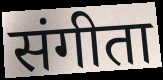
संगीता